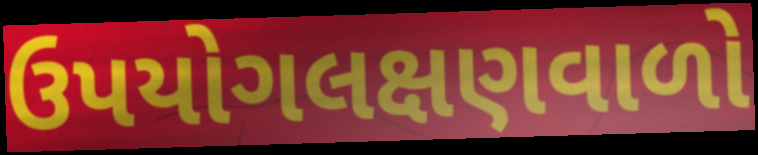
ઉપયોગલક્ષણવાળો